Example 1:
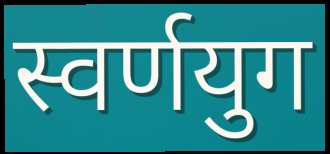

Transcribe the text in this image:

स्वर्णयुग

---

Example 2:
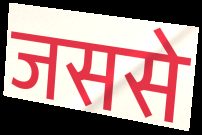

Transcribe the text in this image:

जससे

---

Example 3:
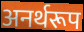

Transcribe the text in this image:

अनर्थरूप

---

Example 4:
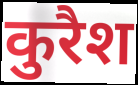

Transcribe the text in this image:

कुरैश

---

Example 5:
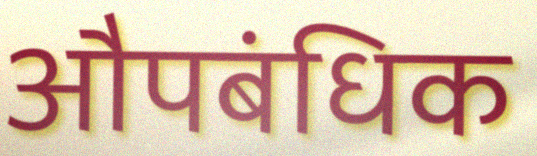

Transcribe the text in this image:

औपबंधिक